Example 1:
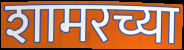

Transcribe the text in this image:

शामरच्या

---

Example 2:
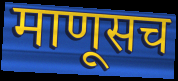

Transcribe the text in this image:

माणूसच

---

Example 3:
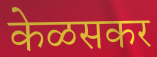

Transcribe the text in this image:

केळसकर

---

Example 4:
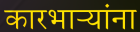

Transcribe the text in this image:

कारभाऱ्यांना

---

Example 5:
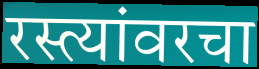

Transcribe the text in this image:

रस्त्यांवरचा